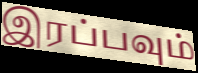
இரப்பவும்